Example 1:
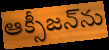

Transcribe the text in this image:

ఆక్సీజన్‌ను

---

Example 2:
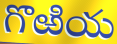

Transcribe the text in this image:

గొఱియ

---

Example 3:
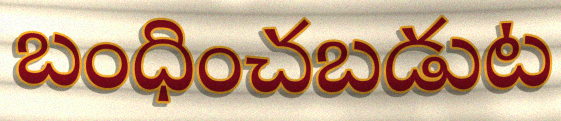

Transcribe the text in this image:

బంధించబడుట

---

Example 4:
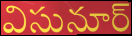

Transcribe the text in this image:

విసునూర్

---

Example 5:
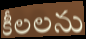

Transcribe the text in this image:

కీలలను